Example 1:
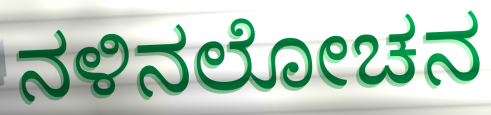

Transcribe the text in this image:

ನಳಿನಲೋಚನ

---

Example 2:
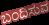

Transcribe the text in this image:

ಬಂದಿಸುವ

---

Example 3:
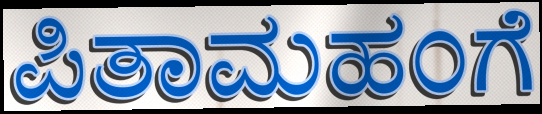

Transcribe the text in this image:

ಪಿತಾಮಹಂಗೆ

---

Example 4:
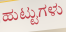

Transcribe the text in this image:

ಹುಟ್ಟುಗಳು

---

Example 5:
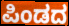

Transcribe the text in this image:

ಪಿಂಡದ